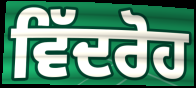
ਵਿੱਦਰੋਹ